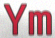
Ym